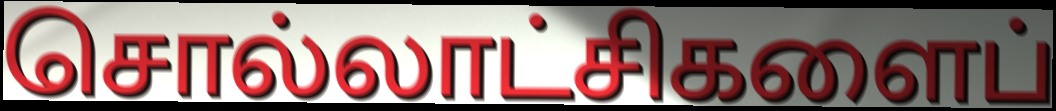
சொல்லாட்சிகளைப்